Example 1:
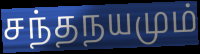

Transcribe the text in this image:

சந்தநயமும்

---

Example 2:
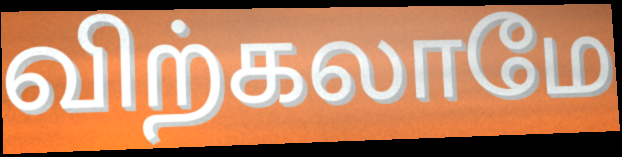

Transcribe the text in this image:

விற்கலாமே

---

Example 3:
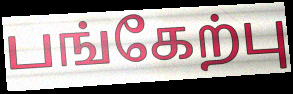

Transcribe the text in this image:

பங்கேற்பு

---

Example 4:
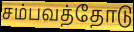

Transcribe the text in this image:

சம்பவத்தோடு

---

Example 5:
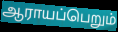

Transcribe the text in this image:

ஆராயப்பெறும்